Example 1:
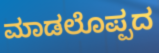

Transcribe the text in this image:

ಮಾಡಲೊಪ್ಪದ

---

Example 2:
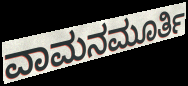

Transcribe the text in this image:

ವಾಮನಮೂರ್ತಿ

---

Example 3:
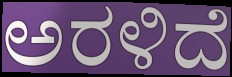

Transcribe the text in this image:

ಅರಳಿದೆ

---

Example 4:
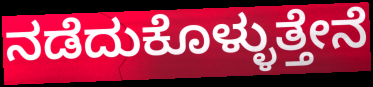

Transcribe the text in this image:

ನಡೆದುಕೊಳ್ಳುತ್ತೇನೆ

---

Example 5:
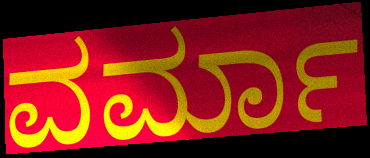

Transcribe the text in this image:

ವರ್ಮಾ